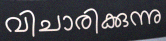
വിചാരിക്കുന്നു